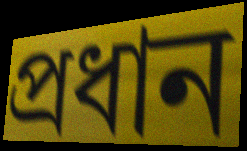
প্রধান